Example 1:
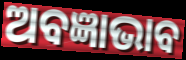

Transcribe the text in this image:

ଅବଜ୍ଞାଭାବ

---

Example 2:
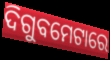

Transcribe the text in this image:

ଦିଗୁବମେଟାରେ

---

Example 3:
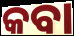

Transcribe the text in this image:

କବା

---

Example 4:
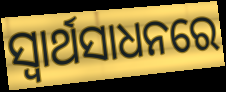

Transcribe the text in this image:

ସ୍ବାର୍ଥସାଧନରେ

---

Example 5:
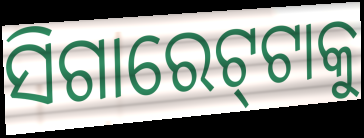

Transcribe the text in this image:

ସିଗାରେଟ୍‍ଟାକୁ